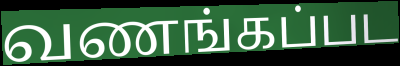
வணங்கப்பட